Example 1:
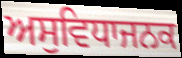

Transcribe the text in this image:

ਅਸੁਵਿਧਾਜਨਕ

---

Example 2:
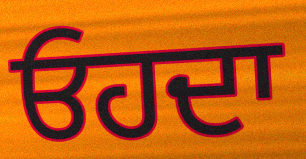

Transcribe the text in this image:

ਓਹਦਾ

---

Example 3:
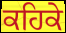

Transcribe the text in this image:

ਕਹਿਕੇ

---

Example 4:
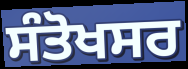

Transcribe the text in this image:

ਸੰਤੋਖਸਰ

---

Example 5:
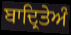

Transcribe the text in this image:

ਬਾਦ੍ਰਿਤੇਅੰ